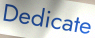
Dedicate